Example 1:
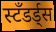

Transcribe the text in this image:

स्टँडर्ड्स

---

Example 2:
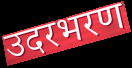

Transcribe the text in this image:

उदरभरण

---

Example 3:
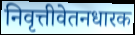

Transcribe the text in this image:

निवृत्तीवेतनधारक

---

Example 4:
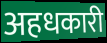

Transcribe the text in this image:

अहधकारी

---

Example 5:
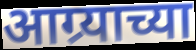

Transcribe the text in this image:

आग्र्याच्या